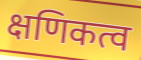
क्षणिकत्व